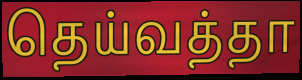
தெய்வத்தா